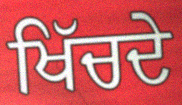
ਖਿੱਚਦੇ